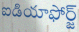
ఐడియాఫోర్జ్